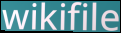
wikifile